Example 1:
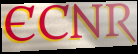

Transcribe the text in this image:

ECNR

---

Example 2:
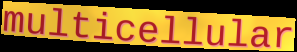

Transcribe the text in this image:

multicellular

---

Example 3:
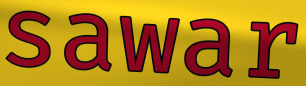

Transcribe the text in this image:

sawar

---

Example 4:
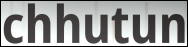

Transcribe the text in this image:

chhutun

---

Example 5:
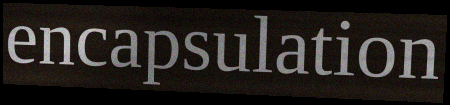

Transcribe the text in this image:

encapsulation